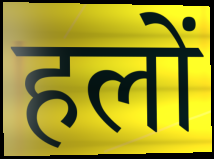
हलों